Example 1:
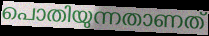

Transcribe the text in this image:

പൊതിയുന്നതാണത്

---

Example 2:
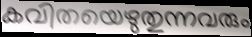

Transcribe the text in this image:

കവിതയെഴുതുന്നവരും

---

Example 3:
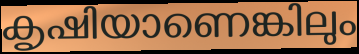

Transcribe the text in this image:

കൃഷിയാണെങ്കിലും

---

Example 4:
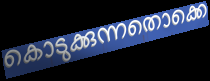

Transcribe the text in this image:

കൊടുക്കുന്നതൊക്കെ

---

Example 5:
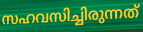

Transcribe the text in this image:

സഹവസിച്ചിരുന്നത്